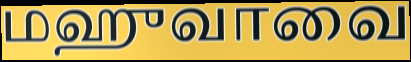
மஹுவாவை